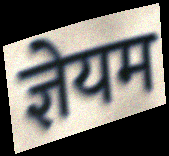
ज्ञेयम